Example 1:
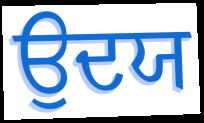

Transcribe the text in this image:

ਉਦਯ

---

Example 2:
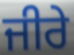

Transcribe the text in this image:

ਜੀਰੇ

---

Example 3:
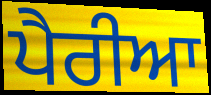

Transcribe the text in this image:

ਪੈਰੀਆ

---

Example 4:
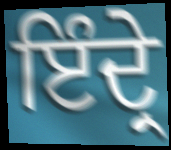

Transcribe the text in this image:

ਇੰਦ੍ਰੇ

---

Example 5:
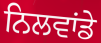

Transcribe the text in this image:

ਨਿਲਵਾਂਡੇ